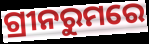
ଗ୍ରୀନରୁମରେ